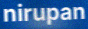
nirupan